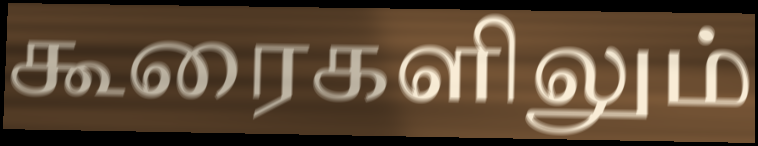
கூரைகளிலும்